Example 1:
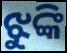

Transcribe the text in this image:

ଝୁଙ୍କି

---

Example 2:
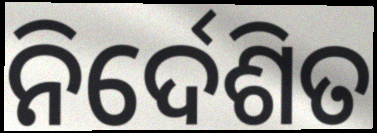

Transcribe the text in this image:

ନିର୍ଦେଶିତ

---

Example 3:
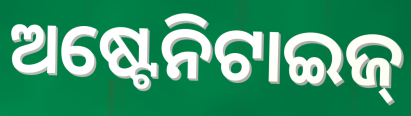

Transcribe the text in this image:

ଅଷ୍ଟେନିଟାଇଜ୍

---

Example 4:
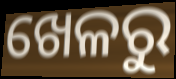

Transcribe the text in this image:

ଖେଳରୁ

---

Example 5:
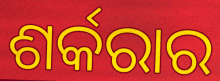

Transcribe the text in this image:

ଶର୍କରାର